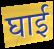
घाई